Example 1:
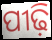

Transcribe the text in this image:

ପୀଢ଼ି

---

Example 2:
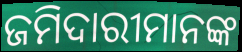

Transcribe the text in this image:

ଜମିଦାରୀମାନଙ୍କ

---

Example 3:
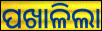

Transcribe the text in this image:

ପଖାଳିଲା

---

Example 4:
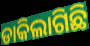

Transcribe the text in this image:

ଡାକିଲାଗିଛି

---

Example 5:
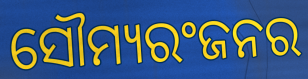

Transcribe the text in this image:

ସୌମ୍ୟରଂଜନର